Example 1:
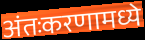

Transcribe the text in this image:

अंतःकरणामध्ये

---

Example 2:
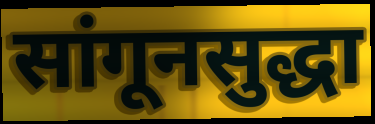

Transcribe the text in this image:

सांगूनसुद्धा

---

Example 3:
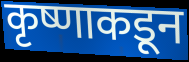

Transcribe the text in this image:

कृष्णाकडून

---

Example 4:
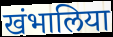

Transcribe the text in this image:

खंभालिया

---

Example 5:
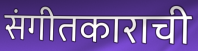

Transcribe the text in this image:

संगीतकाराची